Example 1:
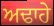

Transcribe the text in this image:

ਅਢਾਹੇ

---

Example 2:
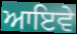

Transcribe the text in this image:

ਆਇਵੇ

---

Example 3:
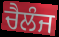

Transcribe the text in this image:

ਚੈਲੰਜ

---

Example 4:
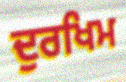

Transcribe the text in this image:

ਦੁਰਖਿਮ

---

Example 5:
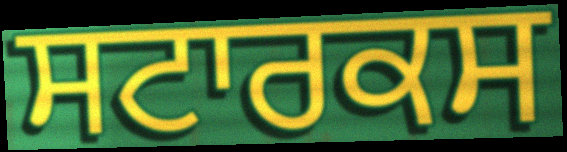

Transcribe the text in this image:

ਸਟਾਰਕਸ